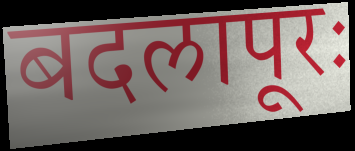
बदलापूरः